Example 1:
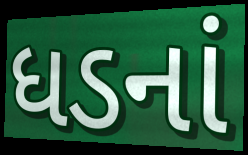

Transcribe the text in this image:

ધડનાં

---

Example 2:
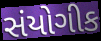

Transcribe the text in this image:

સંયોગીક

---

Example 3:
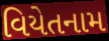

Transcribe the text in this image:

વિયેતનામ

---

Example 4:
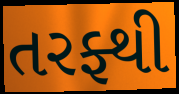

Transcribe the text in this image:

તરફ્થી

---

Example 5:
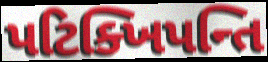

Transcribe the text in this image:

પટિક્ખિપન્તિ